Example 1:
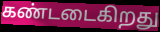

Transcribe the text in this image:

கண்டடைகிறது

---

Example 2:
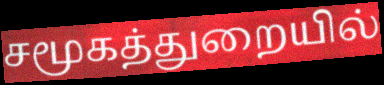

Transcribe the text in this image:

சமூகத்துறையில்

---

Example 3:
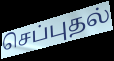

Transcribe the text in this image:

செப்புதல்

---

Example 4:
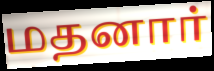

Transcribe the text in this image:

மதனார்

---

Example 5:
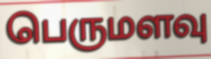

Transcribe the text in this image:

பெருமளவு